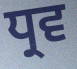
ਧ੍ਰਵ